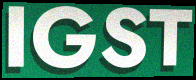
IGST